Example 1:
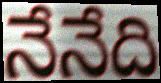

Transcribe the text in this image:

నేనేది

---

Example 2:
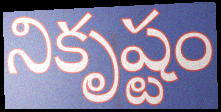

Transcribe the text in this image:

నికృష్టం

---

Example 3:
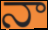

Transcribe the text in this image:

నా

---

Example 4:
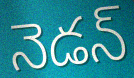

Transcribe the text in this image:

నెడన్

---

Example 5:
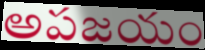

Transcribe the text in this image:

అపజయం